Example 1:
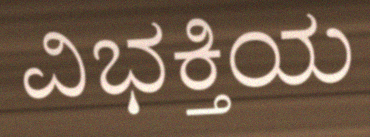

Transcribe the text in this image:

ವಿಭಕ್ತಿಯ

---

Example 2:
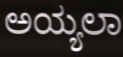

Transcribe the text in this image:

ಅಯ್ಯಲಾ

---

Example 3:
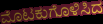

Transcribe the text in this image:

ಮೊಟಕುಗೊಳಿಸಿದ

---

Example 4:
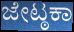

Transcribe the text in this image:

ಜೇಟ್ಠಕಾ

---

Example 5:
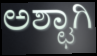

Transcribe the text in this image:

ಅಶ್ಟಾಗಿ